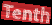
Tenth